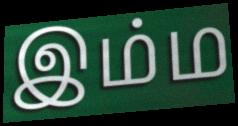
இம்ம